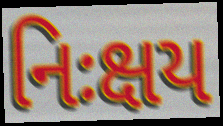
નિઃક્ષય